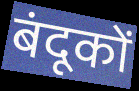
बंदूकों